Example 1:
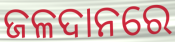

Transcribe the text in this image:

ଜଳଦାନରେ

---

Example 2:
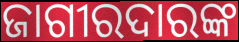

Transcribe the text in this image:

ଜାଗୀରଦାରଙ୍କ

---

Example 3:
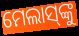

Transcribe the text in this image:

ମେଲାସ୍‌ଙ୍କୁ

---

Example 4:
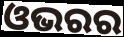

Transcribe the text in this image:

ଓଭରର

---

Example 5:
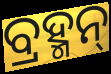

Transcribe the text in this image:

ବ୍ରହ୍ମନ୍